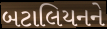
બટાલિયનને